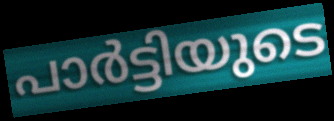
പാർട്ടിയുടെ